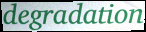
degradation